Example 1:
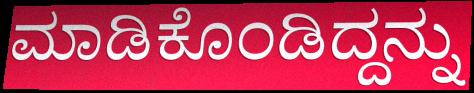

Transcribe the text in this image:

ಮಾಡಿಕೊಂಡಿದ್ದನ್ನು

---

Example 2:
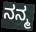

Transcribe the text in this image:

ನನ್ಮ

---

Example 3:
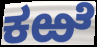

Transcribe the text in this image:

ಕಱೆ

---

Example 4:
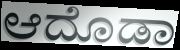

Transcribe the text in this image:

ಆದೊಡಾ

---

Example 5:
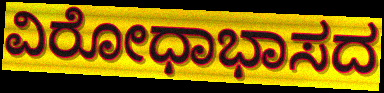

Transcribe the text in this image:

ವಿರೋಧಾಭಾಸದ